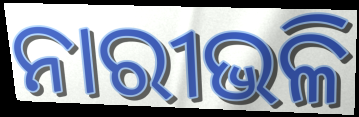
ନାରୀଭଳି